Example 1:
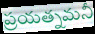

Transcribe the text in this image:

ప్రయత్నమనీ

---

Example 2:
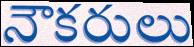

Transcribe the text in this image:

నౌకరులు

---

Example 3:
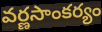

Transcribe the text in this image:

వర్ణసాంకర్యం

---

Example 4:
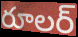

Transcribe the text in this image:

రూలర్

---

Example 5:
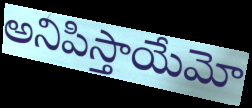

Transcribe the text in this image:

అనిపిస్తాయేమో